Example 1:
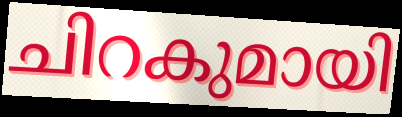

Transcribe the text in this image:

ചിറകുമായി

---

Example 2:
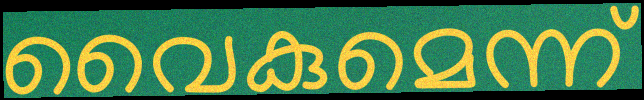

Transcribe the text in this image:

വൈകുമെന്ന്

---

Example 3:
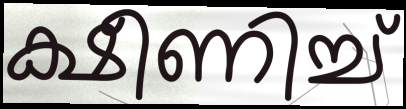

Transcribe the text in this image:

ക്ഷീണിച്ച്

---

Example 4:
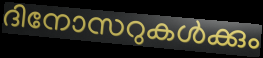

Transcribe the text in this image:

ദിനോസറുകൾക്കും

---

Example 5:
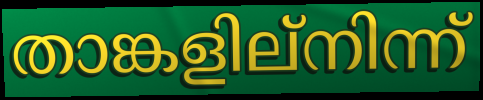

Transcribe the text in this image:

താങ്കളില്നിന്ന്